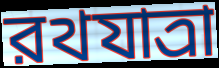
রথযাত্রা